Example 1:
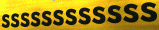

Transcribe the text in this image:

ssssssssssss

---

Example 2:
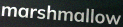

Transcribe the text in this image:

marshmallow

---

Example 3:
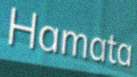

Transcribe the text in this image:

Hamata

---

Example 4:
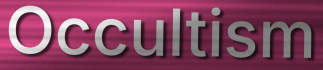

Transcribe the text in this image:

Occultism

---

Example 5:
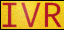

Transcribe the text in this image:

IVR